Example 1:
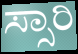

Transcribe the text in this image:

ಸ್ಸಾರಿ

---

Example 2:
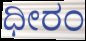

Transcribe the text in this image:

ಧೀರಂ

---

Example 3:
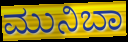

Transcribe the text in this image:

ಮುನಿಬಾ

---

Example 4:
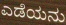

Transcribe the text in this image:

ಎಡೆಯನು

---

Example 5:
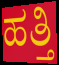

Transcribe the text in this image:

ಹತ್ತಿ